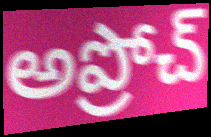
అప్రోచ్